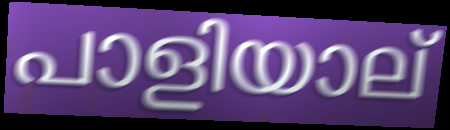
പാളിയാല്